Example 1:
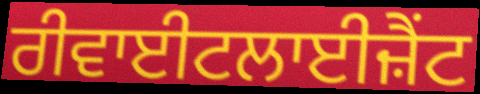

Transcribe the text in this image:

ਰੀਵਾਈਟਲਾਈਜ਼ੈਂਟ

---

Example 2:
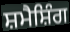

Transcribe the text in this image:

ਸ਼ਮੈਸ਼ਿੰਗ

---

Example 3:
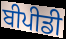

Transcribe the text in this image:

ਬੀਪੀਡੀ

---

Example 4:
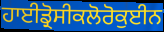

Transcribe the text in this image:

ਹਾਈਡ੍ਰੋਸੀਕਲੋਰੋਕੁਈਨ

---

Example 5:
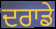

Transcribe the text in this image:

ਦਰਾਡੇ